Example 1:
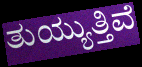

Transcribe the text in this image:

ತುಯ್ಯುತ್ತಿವೆ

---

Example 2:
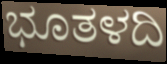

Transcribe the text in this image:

ಭೂತಳದಿ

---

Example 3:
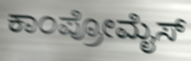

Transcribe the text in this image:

ಕಾಂಪ್ರೋಮೈಸ್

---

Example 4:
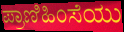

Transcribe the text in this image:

ಪ್ರಾಣಿಹಿಂಸೆಯು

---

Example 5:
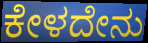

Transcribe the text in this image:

ಕೇಳದೇನು